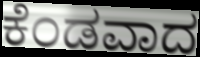
ಕೆಂಡವಾದ